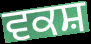
ਵਕਸ਼